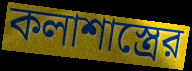
কলাশাস্ত্রের